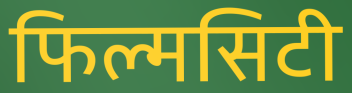
फिल्मसिटी